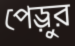
পেড়্রুর